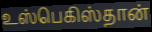
உஸ்பெகிஸ்தான்